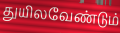
துயிலவேண்டும்